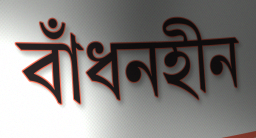
বাঁধনহীন